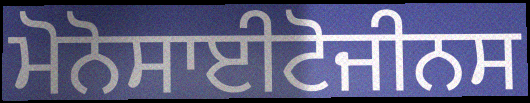
ਮੋਨੋਸਾਈਟੋਜੀਨਸ